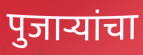
पुजाऱ्यांचा